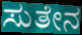
ಸುತೇನ